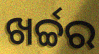
ଖର୍ଚ୍ଚର